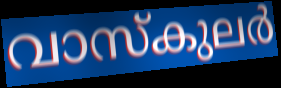
വാസ്കുലർ